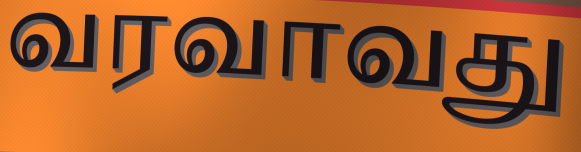
வரவாவது